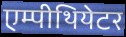
एम्पीथियेटर